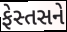
ફેસ્તસને